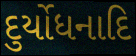
દુર્યોધનાદિ